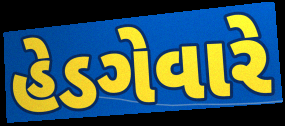
હેડગેવારે